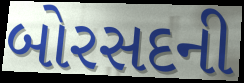
બોરસદની